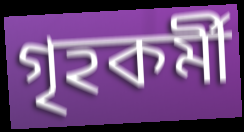
গৃহকর্মী